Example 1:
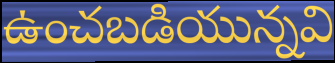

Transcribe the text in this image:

ఉంచబడియున్నవి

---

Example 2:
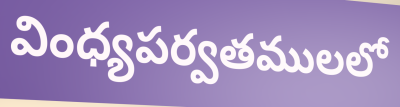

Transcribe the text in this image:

వింధ్యపర్వతములలో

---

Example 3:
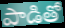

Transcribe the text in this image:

పాడితో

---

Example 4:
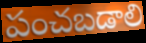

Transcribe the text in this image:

పంచబడాలి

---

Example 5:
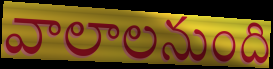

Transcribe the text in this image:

వాలాలనుంది